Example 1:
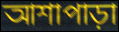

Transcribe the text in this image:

আশাপাড়া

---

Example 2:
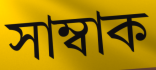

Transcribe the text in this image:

সাম্বাক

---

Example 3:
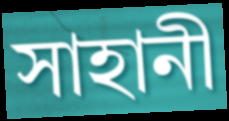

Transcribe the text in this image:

সাহানী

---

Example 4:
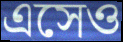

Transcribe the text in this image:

এসেও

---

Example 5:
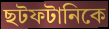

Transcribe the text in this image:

ছটফটানিকে